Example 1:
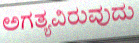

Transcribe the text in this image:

ಅಗತ್ಯವಿರುವುದು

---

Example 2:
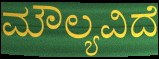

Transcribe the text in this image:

ಮೌಲ್ಯವಿದೆ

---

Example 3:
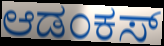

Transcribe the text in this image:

ಆಡಂಕಸ್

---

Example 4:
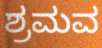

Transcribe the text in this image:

ಶ್ರಮವ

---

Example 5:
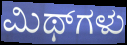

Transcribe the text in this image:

ಮಿಥ್‌ಗಳು